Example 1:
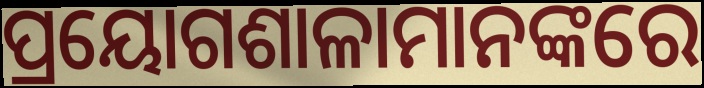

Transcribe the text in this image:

ପ୍ରୟୋଗଶାଳାମାନଙ୍କରେ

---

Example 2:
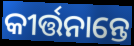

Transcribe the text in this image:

କୀର୍ତ୍ତନାନ୍ତେ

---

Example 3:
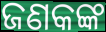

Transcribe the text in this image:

ଜଣକଙ୍କ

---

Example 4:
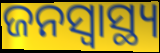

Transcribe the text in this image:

ଜନସ୍ୱାସ୍ଥ୍ୟ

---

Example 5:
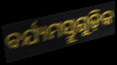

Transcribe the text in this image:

ବର୍ଯ୍ୟମସ୍ତୁଗୁଡ଼ିକ